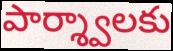
పార్శ్వాలకు